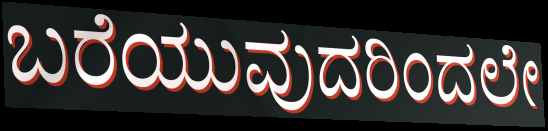
ಬರೆಯುವುದರಿಂದಲೇ